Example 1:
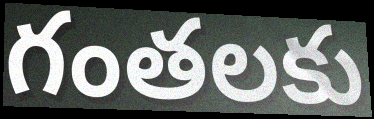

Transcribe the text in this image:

గంతలకు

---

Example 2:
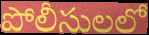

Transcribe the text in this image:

పోలీసులలో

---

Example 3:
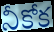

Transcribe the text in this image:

నీకోక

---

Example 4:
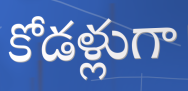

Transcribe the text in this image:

కోడళ్లుగా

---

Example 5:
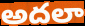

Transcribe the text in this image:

అదలా